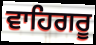
ਵਾਹਿਗਰੂ